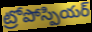
ట్రోపోస్పియర్